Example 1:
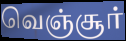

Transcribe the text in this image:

வெஞ்சூர்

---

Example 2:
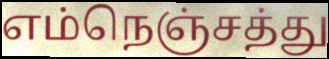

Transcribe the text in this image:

எம்நெஞ்சத்து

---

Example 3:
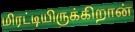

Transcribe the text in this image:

மிரட்டியிருக்கிறான்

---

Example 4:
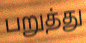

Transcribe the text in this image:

பறுத்து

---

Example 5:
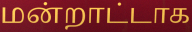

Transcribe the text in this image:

மன்றாட்டாக